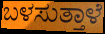
ಬಳಸುತ್ತಾಳೆ